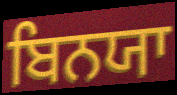
ਬਿਨਯਾ